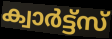
ക്വാർട്ട്സ്